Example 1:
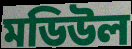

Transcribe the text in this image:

মডিউল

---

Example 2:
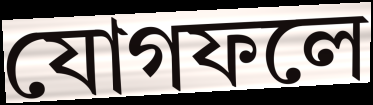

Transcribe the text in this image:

যোগফলে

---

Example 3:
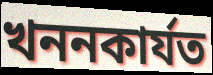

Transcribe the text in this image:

খননকাৰ্যত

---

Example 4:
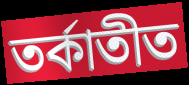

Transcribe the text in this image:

তৰ্কাতীত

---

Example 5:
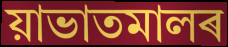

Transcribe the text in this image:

য়াভাতমালৰ